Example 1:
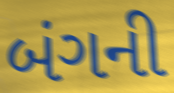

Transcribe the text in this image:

બંગની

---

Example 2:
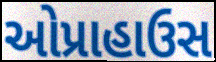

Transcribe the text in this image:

ઓપ્રાહાઉસ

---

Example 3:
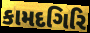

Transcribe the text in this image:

કામદગિરિ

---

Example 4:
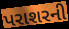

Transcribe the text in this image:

પરાશરની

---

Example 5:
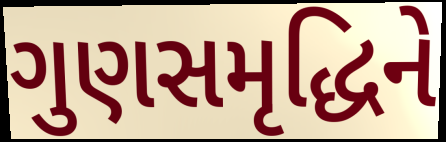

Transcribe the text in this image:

ગુણસમૃદ્ધિને